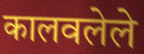
कालवलेले